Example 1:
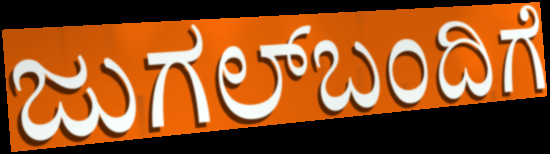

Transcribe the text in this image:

ಜುಗಲ್‌ಬಂದಿಗೆ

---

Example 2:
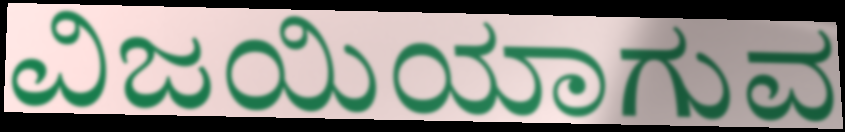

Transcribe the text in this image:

ವಿಜಯಿಯಾಗುವ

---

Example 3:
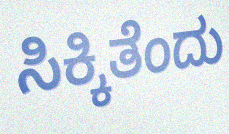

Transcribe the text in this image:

ಸಿಕ್ಕಿತೆಂದು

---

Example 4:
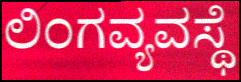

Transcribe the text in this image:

ಲಿಂಗವ್ಯವಸ್ಥೆ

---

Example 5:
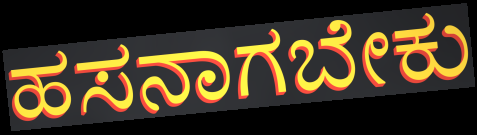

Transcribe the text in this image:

ಹಸನಾಗಬೇಕು